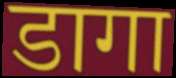
डागा